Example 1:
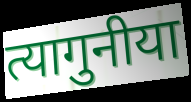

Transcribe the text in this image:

त्यागुनीया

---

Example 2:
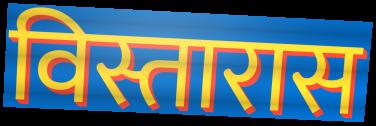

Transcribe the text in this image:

विस्तारास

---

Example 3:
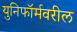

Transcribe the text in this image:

युनिफॉर्मवरील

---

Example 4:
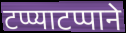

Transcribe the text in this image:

टप्प्याटप्पाने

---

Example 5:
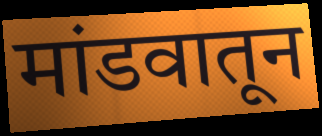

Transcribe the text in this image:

मांडवातून